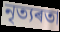
নৃত্যৰতা